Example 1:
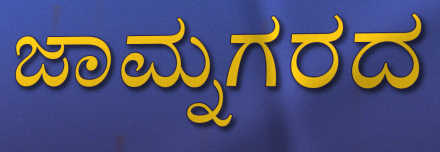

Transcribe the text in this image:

ಜಾಮ್ನಗರದ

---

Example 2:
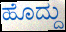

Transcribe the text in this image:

ಹೊದ್ದು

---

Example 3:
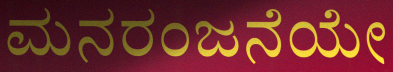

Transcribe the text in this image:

ಮನರಂಜನೆಯೇ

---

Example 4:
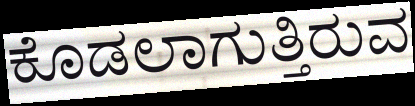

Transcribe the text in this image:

ಕೊಡಲಾಗುತ್ತಿರುವ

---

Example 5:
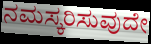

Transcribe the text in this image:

ನಮಸ್ಕರಿಸುವುದೇ